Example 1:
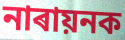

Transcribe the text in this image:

নাৰায়নক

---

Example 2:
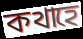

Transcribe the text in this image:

কথাহে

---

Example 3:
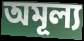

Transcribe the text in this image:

অমূল্য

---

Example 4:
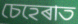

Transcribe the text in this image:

চেহেৰাত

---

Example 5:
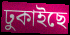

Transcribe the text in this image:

ঢুকাইছে